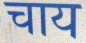
चाय